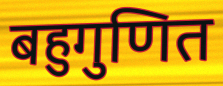
बहुगुणित